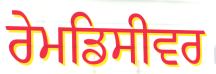
ਰੇਮਡਿਸੀਵਰ